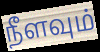
நீளவும்